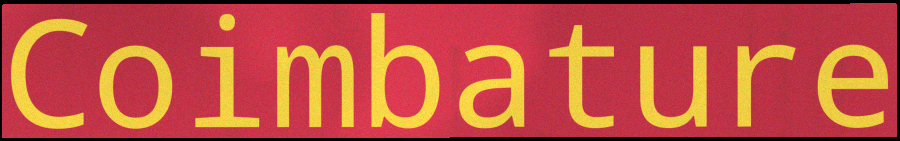
Coimbature